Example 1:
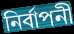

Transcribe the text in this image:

নির্বাপনী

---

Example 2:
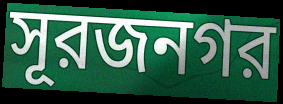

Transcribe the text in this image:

সূরজনগর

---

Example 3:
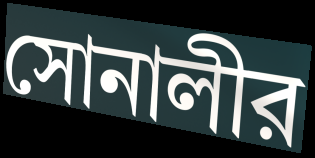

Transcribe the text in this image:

সোনালীর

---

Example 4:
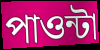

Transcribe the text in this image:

পাওন্টা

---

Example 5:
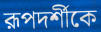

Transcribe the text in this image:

রূপদর্শীকে